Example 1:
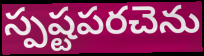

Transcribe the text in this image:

స్పష్టపరచెను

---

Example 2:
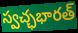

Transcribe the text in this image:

స్వచ్ఛభారత్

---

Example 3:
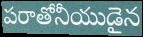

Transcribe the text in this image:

పరాతోనీయుడైన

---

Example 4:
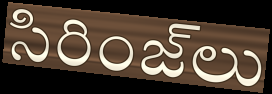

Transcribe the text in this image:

సిరింజ్‌లు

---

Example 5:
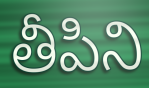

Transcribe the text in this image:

తీపిని